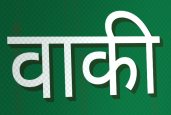
वाकी